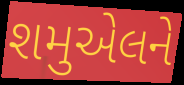
શમુએલને